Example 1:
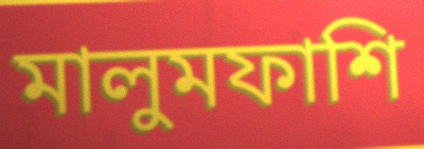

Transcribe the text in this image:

মালুমফাশি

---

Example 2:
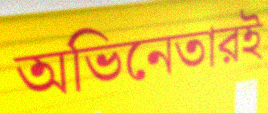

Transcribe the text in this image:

অভিনেতারই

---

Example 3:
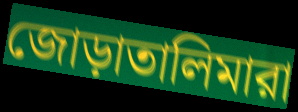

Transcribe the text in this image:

জোড়াতালিমারা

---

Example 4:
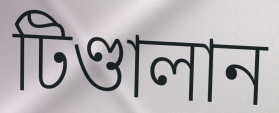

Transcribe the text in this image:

টিণ্ডালান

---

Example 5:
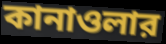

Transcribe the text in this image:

কানাওলার